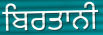
ਬਿਰਤਾਨੀ